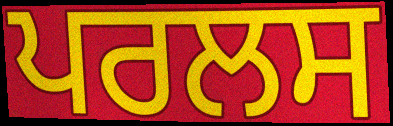
ਪਰਲਸ